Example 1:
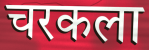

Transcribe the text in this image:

चरकला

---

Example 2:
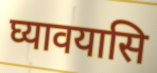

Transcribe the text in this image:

घ्यावयासि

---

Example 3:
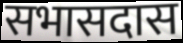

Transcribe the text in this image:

सभासदास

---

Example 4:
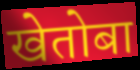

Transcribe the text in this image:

खेतोबा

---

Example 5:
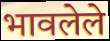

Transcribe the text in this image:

भावलेले